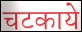
चटकाये